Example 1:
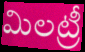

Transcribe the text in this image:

మిలట్రీ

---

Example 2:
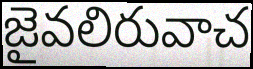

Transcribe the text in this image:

జైవలిరువాచ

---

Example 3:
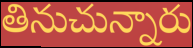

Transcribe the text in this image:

తినుచున్నారు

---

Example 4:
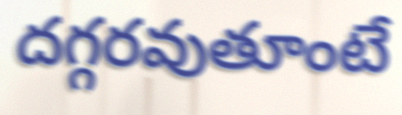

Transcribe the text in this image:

దగ్గరవుతూంటే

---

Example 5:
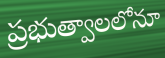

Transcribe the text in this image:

ప్రభుత్వాలలోనూ